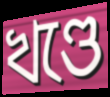
খণ্ডে